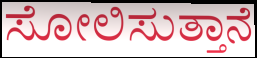
ಸೋಲಿಸುತ್ತಾನೆ